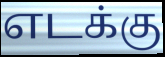
எடக்கு